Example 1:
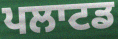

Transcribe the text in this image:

ਪਲਾਟਡ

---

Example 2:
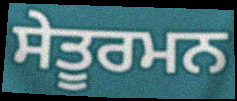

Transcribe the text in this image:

ਸੇਤੂਰਮਨ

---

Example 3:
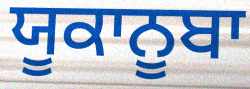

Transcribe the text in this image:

ਯੂਕਾਨੂਬਾ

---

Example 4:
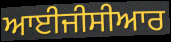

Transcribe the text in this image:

ਆਈਜੀਸੀਆਰ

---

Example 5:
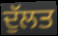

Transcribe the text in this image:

ਦੁੱਲਤ